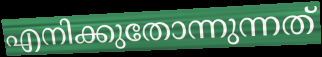
എനിക്കുതോന്നുന്നത്